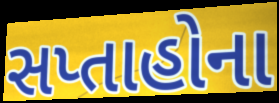
સપ્તાહોના